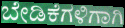
ಬೇಡಿಕೆಗಳಿಗಾಗಿ